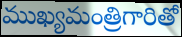
ముఖ్యమంత్రిగారితో